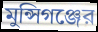
মুন্সিগঞ্জের